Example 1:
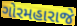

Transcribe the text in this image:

ગોરમહારાજે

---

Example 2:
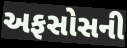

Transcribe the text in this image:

અફસોસની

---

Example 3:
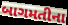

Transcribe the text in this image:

બાગમતીના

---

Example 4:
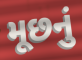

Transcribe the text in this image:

મૂછનું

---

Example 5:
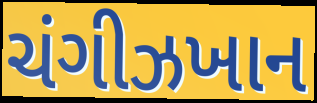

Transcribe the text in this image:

ચંગીઝખાન